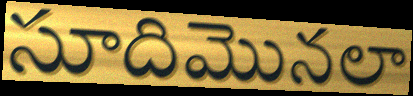
సూదిమొనలా